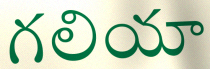
గలియా